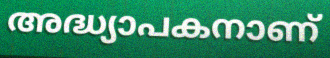
അദ്ധ്യാപകനാണ്